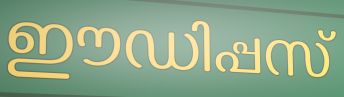
ഈഡിപ്പസ്